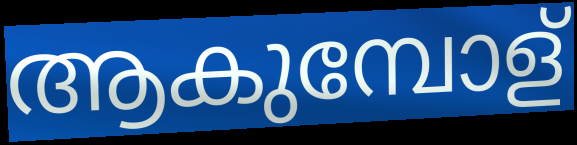
ആകുമ്പോള്